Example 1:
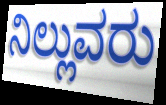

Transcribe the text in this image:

ನಿಲ್ಲುವರು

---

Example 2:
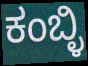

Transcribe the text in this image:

ಕಂಬ್ಳಿ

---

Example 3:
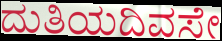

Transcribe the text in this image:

ದುತಿಯದಿವಸೇ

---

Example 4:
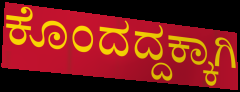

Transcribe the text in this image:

ಕೊಂದದ್ದಕ್ಕಾಗಿ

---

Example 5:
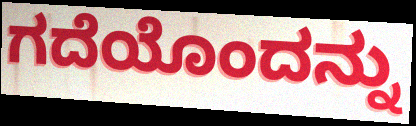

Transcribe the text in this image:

ಗದೆಯೊಂದನ್ನು